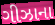
ગીઝાના